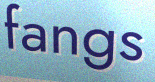
fangs